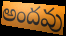
అందవు